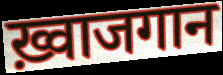
ख़्वाजगान